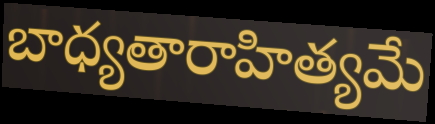
బాధ్యతారాహిత్యమే